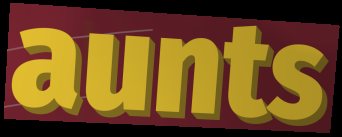
aunts